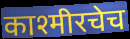
काश्मीरचेच